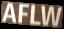
AFLW